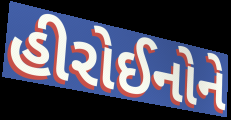
હીરોઈનોને